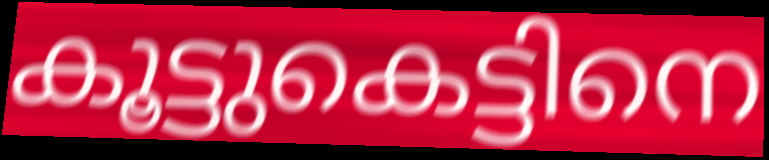
കൂട്ടുകെട്ടിനെ